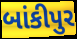
બાંકીપુર